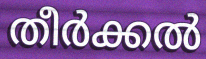
തീർക്കൽ